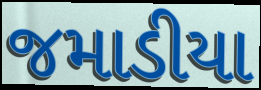
જમાડીયા